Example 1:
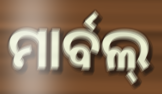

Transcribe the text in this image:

ମାର୍ବଲ୍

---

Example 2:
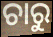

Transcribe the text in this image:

ଚାରୁ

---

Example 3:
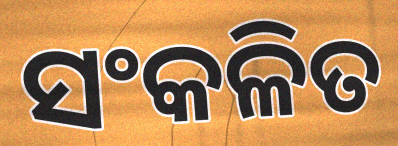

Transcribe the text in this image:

ସଂକଳିତ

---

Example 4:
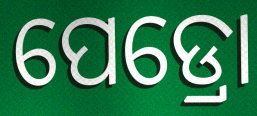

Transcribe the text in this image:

ପେଡ୍ରୋ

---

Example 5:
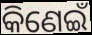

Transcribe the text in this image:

କିଣେଇଁ